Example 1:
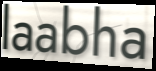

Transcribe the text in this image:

laabha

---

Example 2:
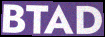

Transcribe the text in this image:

BTAD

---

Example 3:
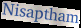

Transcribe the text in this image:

Nisaptham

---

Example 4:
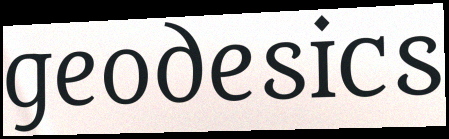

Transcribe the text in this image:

geodesics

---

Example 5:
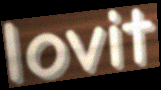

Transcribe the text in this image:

lovit